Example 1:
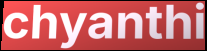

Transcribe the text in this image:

chyanthi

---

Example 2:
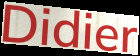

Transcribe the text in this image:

Didier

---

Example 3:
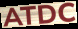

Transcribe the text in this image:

ATDC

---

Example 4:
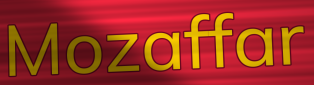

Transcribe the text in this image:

Mozaffar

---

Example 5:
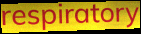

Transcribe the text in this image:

respiratory